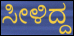
ಸೀಳಿದ್ದ